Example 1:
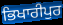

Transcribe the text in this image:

ਭਿਖਾਰੀਪੁਰ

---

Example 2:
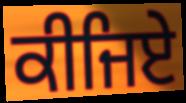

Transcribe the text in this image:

ਕੀਜਿਏ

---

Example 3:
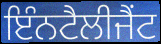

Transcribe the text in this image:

ਇੰਨਟੈਲੀਜੈਂਟ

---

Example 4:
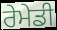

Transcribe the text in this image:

ਰੇਮੇਡੀ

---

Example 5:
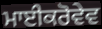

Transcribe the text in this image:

ਮਾਈਕਰੋਵੇਵ